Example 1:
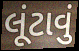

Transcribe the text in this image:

લૂંટાવું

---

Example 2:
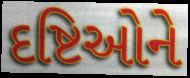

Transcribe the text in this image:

દષ્ટિઓને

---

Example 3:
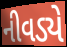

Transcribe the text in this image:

નીવડ્યે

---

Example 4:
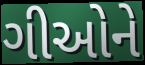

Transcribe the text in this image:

ગીઓને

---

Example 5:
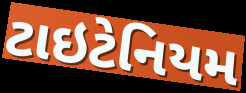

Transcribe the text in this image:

ટાઇટેનિયમ